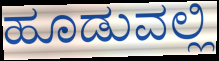
ಹೂಡುವಲ್ಲಿ